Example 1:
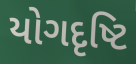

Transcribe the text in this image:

યોગદૃષ્ટિ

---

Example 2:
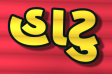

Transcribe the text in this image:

હાટુ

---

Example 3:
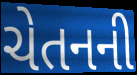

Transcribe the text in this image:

ચેતનની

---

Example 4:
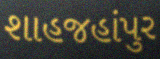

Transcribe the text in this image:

શાહજહાંપુર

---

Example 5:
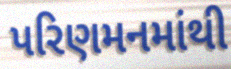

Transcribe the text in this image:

પરિણમનમાંથી